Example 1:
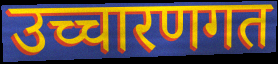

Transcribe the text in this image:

उच्चारणगत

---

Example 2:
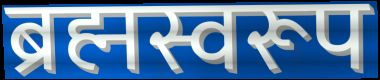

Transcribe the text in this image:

ब्रह्मस्वरूप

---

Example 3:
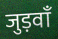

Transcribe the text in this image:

जुड़वाँ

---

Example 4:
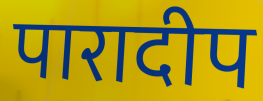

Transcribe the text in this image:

पारादीप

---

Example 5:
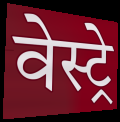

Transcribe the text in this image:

वेस्ट्रे